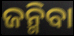
ଜନ୍ମିବା